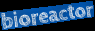
bioreactor